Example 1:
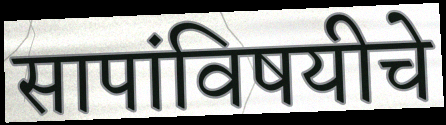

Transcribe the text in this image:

सापांविषयीचे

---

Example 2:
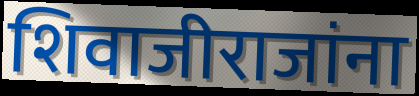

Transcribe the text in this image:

शिवाजीराजांना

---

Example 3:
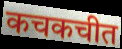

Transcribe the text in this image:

कचकचीत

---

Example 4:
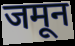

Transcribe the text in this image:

जमून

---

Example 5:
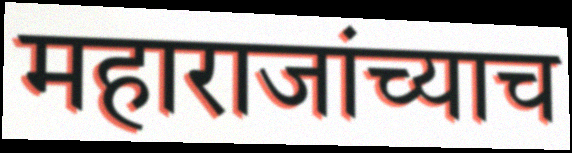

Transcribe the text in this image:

महाराजांच्याच